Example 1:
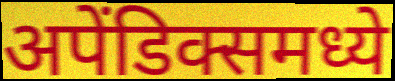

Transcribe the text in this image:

अपेंडिक्समध्ये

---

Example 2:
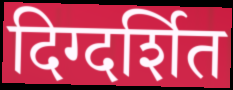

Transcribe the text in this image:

दिग्दर्शित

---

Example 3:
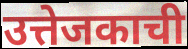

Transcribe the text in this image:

उत्तेजकाची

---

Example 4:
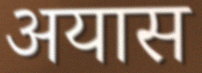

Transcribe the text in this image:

अयास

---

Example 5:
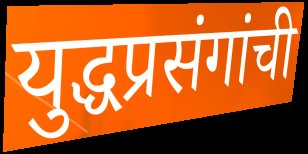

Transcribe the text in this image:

युद्धप्रसंगांची